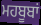
ਮਹਬੂਬਾਂ